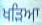
ਖੜਿਆ